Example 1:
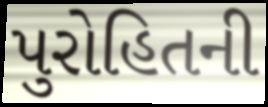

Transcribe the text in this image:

પુરોહિતની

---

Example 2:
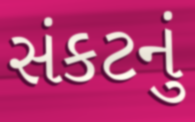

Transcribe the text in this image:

સંકટનું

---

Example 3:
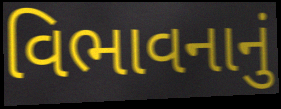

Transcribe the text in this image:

વિભાવનાનું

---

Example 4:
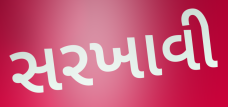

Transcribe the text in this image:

સરખાવી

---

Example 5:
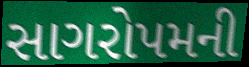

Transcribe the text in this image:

સાગરોપમની